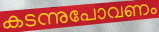
കടന്നുപോവണം